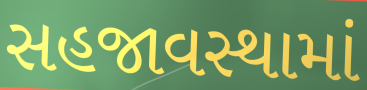
સહજાવસ્થામાં